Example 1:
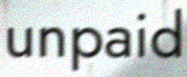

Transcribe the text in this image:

unpaid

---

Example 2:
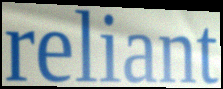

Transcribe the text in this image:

reliant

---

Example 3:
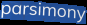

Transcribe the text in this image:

parsimony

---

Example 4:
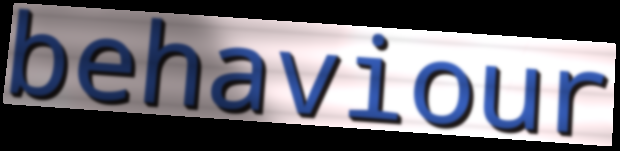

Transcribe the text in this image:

behaviour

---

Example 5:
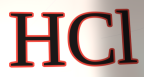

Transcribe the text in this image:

HCl